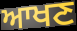
ਆਖਣ